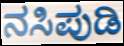
ನಸಿಪುಡಿ